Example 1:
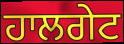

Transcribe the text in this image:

ਹਾਲਗੇਟ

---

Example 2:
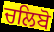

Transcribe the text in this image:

ਚਲਿਬੋ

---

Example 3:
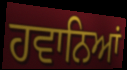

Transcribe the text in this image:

ਹਵਾਨਿਆਂ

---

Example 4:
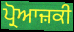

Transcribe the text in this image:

ਪ੍ਰੋਆਜ਼ਕੀ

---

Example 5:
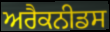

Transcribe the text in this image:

ਅਰੈਕਨੀਡਸ